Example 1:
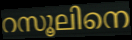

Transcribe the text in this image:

റസൂലിനെ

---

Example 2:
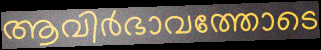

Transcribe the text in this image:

ആവിർഭാവത്തോടെ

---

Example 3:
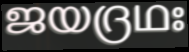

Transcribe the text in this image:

ജയദ്രഥഃ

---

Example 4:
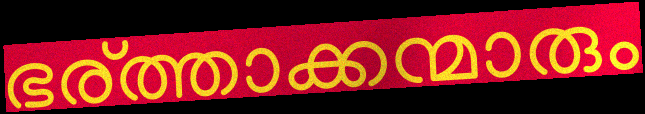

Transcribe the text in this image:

ഭര്ത്താക്കന്മാരും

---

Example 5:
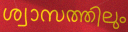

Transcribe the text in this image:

ശ്വാസത്തിലും